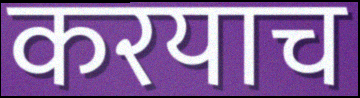
करयाच